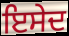
ਇਸੇਦ